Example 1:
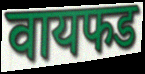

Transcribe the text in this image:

वायफड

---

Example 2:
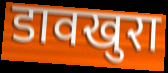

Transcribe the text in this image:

डावखुरा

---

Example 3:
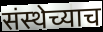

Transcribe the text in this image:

संस्थेच्याच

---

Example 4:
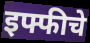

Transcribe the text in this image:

इफ्फीचे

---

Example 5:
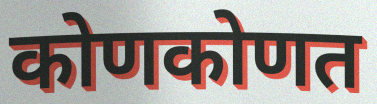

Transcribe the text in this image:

कोणकोणत